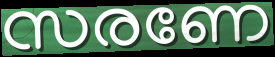
സരണേ